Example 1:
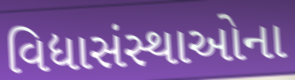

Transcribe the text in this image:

વિદ્યાસંસ્થાઓના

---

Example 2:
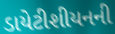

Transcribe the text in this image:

ડાયેટીશીયનની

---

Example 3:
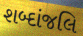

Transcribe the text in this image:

શબ્દાંજલિ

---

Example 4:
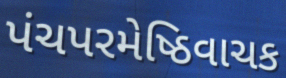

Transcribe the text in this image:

પંચપરમેષ્ઠિવાચક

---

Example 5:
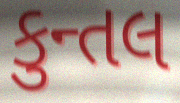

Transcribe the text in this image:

કુન્તલ